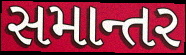
સમાન્તર